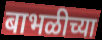
बाभळीच्या